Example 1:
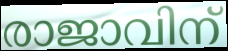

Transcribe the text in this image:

രാജാവിന്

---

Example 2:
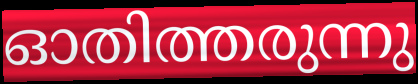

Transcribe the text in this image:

ഓതിത്തരുന്നു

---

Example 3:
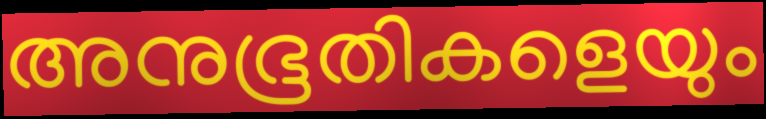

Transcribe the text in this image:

അനുഭൂതികളെയും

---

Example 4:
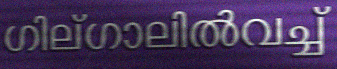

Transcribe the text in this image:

ഗില്ഗാലിൽവച്ച്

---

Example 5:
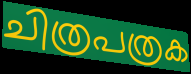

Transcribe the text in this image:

ചിത്രപത്രക